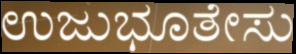
ಉಜುಭೂತೇಸು